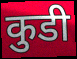
कुडी